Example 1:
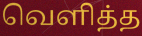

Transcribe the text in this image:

வெளித்த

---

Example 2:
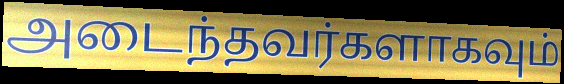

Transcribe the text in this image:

அடைந்தவர்களாகவும்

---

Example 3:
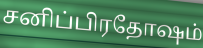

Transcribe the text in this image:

சனிப்பிரதோஷம்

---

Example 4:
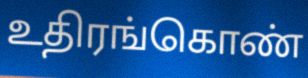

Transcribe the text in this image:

உதிரங்கொண்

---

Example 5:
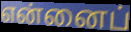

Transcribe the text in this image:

என்னைப்